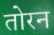
तोरन